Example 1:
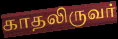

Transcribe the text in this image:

காதலிருவர்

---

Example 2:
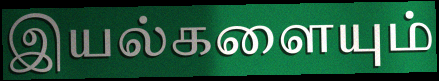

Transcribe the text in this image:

இயல்களையும்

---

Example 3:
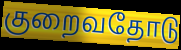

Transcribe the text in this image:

குறைவதோடு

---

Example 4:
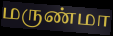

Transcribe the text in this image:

மருண்மா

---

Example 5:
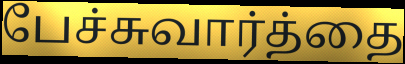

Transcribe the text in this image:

பேச்சுவார்த்தை